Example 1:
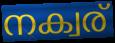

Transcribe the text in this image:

നക്വര്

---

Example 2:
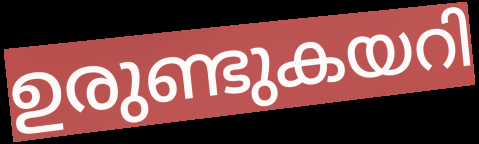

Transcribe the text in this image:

ഉരുണ്ടുകയറി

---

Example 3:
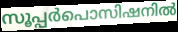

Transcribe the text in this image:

സൂപ്പർപൊസിഷനിൽ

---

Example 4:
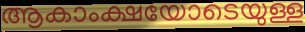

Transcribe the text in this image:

ആകാംക്ഷയോടെയുള്ള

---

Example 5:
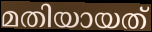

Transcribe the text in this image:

മതിയായത്